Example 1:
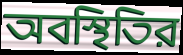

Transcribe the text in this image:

অবস্থিতির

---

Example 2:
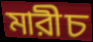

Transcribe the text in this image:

মারীচ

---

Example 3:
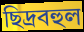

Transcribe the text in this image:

ছিদ্রবহুল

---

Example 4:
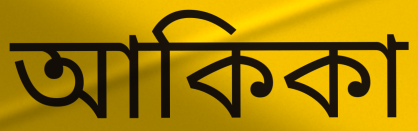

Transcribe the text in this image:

আকিকা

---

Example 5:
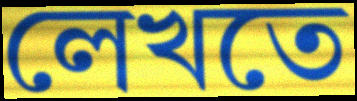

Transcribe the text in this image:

লেখতে